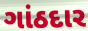
ગાંઠદાર